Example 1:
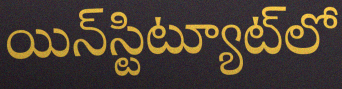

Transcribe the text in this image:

యిన్‌స్టిట్యూట్‌లో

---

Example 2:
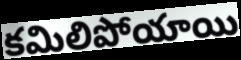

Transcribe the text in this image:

కమిలిపోయాయి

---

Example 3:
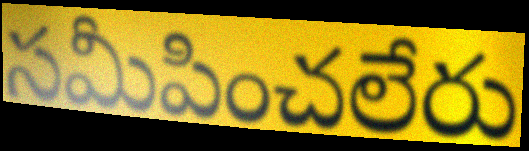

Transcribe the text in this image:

సమీపించలేరు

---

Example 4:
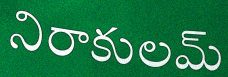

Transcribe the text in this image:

నిరాకులమ్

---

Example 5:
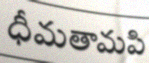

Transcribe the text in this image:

ధీమతామపి